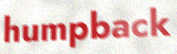
humpback